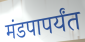
मंडपापर्यंत